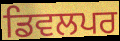
ਡਿਵਲਪਰ